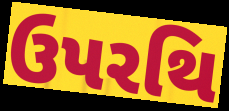
ઉપરથિ